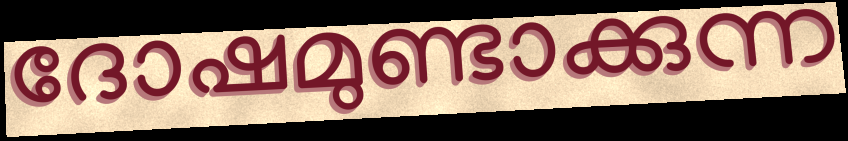
ദോഷമുണ്ടാക്കുന്ന